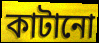
কাটানো